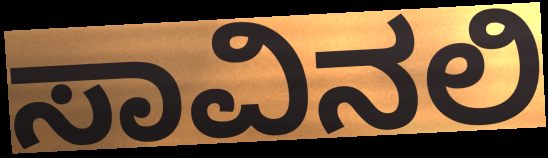
ಸಾವಿನಲಿ